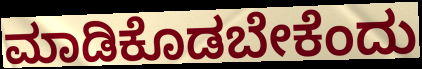
ಮಾಡಿಕೊಡಬೇಕೆಂದು